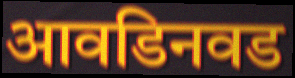
आवडिनवड